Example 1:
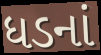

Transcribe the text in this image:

ધડનાં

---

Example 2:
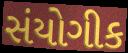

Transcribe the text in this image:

સંયોગીક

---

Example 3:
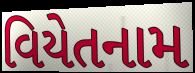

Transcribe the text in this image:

વિયેતનામ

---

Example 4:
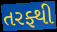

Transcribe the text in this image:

તરફ્થી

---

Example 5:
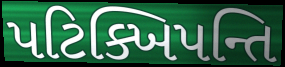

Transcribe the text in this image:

પટિક્ખિપન્તિ